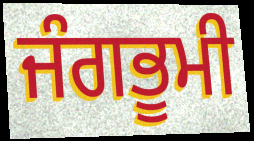
ਜੰਗਭੂਮੀ